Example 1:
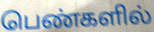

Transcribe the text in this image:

பெண்களில்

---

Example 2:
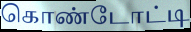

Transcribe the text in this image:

கொண்டோட்டி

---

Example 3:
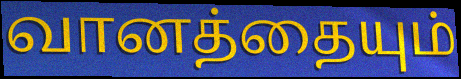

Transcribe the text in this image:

வானத்தையும்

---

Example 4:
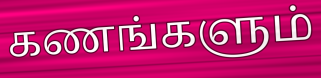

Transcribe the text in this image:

கணங்களும்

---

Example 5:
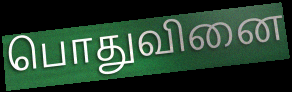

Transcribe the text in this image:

பொதுவினை